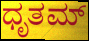
ಧೃತಮ್